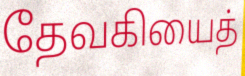
தேவகியைத்